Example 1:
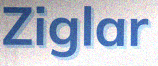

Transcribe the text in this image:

Ziglar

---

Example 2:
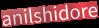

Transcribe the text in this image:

anilshidore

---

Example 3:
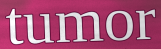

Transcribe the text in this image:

tumor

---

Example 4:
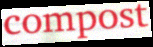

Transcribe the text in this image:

compost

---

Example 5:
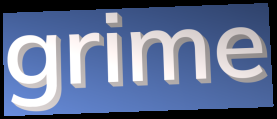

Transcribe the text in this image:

grime